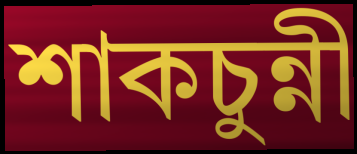
শাকচুন্নী